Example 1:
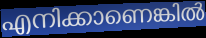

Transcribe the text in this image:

എനിക്കാണെങ്കിൽ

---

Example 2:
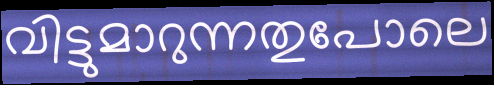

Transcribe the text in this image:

വിട്ടുമാറുന്നതുപോലെ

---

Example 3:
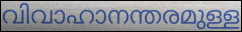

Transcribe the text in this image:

വിവാഹാനന്തരമുള്ള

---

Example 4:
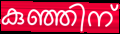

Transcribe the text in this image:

കുഞ്ഞിന്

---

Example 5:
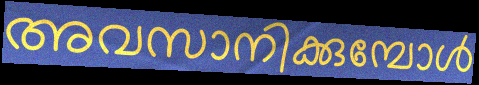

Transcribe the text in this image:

അവസാനിക്കുമ്പോൾ